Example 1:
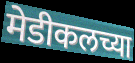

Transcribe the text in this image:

मेडीकलच्या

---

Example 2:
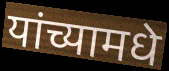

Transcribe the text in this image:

यांच्यामधे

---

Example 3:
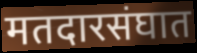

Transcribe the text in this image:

मतदारसंघात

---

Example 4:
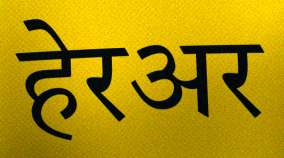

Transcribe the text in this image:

हेरअर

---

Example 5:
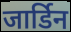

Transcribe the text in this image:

जार्डिन